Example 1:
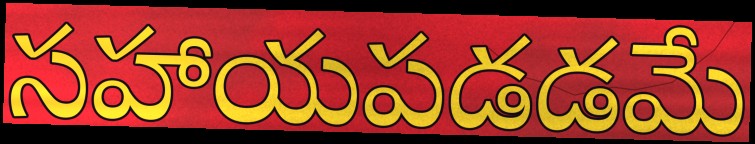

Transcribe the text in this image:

సహాయపడడమే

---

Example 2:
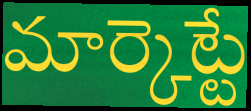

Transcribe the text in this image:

మార్కెట్టే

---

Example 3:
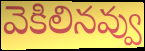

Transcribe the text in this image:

వెకిలినవ్వు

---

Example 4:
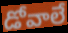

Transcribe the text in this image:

డోవాలే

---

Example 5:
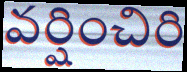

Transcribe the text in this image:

వర్షించిరి